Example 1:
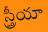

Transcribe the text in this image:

స్త్రీయా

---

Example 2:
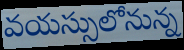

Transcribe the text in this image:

వయస్సులోనున్న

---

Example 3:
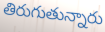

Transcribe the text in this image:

తిరుగుతున్నారు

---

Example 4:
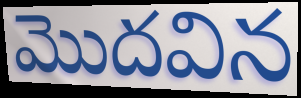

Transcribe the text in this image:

మొదవిన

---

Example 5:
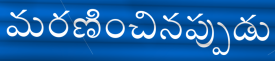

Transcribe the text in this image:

మరణించినప్పుడు